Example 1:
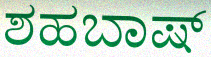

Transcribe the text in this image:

ಶಹಬಾಷ್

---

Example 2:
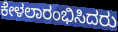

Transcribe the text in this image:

ಕೇಳಲಾರಂಭಿಸಿದರು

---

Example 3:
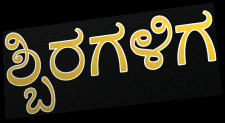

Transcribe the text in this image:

ಶ್ಬಿರಗಳಿಗ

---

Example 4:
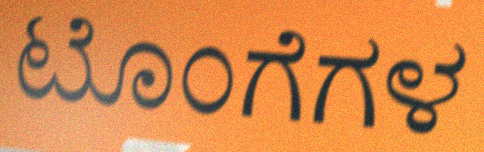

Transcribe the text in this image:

ಟೊಂಗೆಗಳ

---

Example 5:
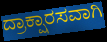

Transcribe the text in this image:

ದ್ರಾಕ್ಷಾರಸವಾಗಿ